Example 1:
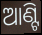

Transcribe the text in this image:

ଆଣ୍ଟି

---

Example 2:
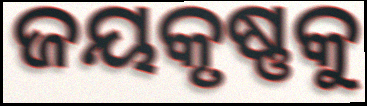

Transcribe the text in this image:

ଜୟକୃଷ୍ଣକୁ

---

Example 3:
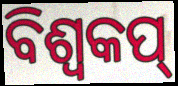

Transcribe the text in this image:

ବିଶ୍ୱକପ୍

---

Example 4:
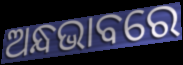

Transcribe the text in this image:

ଅନ୍ଧଭାବରେ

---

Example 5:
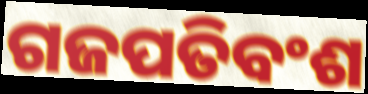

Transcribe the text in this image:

ଗଜପତିବଂଶ